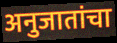
अनुजातांचा